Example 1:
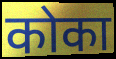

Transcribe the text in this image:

कोका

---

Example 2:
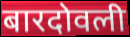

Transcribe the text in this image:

बारदोवली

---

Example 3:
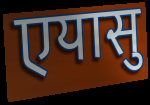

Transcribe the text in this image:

एयासु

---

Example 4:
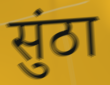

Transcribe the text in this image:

सुंठा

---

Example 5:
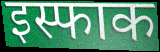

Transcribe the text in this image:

इस्फाक